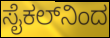
ಸೈಕಲ್‌ನಿಂದ